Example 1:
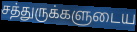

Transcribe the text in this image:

சத்துருக்களுடைய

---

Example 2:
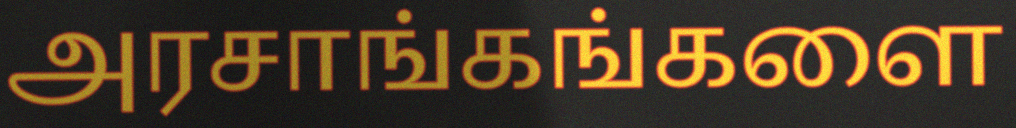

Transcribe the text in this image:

அரசாங்கங்களை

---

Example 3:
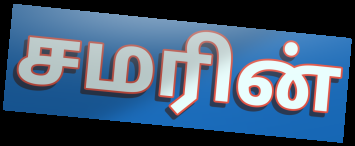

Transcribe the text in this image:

சமரின்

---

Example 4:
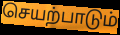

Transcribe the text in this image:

செயற்பாடும்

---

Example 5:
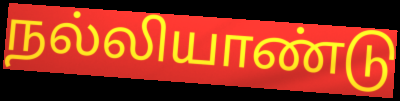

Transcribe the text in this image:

நல்லியாண்டு